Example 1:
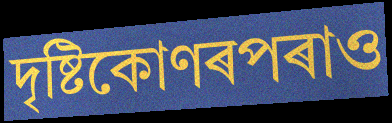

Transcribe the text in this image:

দৃষ্টিকোণৰপৰাও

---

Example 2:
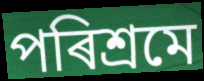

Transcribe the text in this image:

পৰিশ্ৰমে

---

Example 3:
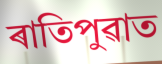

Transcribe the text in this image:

ৰাতিপুৱাত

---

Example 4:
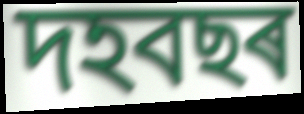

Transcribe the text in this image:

দহবছৰ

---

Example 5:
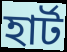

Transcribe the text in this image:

হাৰ্ট